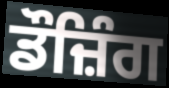
ਡੌਜ਼ਿੰਗ